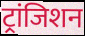
ट्रांजिशन